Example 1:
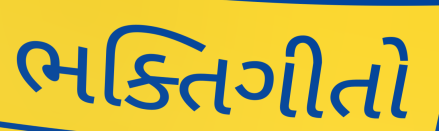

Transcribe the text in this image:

ભક્તિગીતો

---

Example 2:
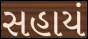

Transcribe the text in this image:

સહાયં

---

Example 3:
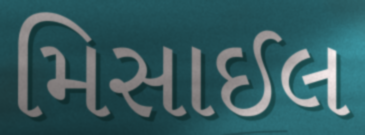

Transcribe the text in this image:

મિસાઈલ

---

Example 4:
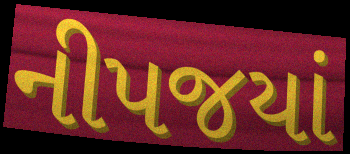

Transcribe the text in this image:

નીપજયાં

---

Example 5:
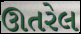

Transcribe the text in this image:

ઊતરેલ